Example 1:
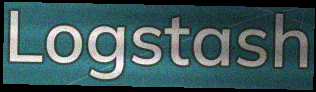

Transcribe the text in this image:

Logstash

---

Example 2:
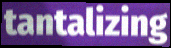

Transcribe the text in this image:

tantalizing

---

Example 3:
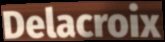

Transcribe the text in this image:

Delacroix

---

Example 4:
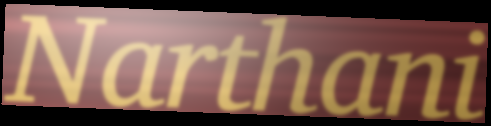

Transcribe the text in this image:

Narthani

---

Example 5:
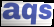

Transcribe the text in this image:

aqs